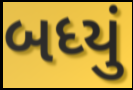
બધ્યું